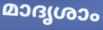
മാദൃശാം